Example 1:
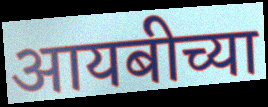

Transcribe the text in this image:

आयबीच्या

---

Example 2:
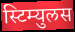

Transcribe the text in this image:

स्टिम्युलस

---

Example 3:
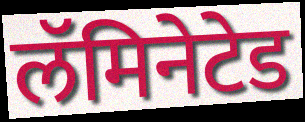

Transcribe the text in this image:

लॅमिनेटेड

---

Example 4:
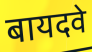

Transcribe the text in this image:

बायदवे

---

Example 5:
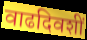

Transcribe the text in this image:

वाढदिवशीं